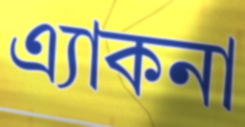
এ্যাকনা